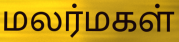
மலர்மகள்